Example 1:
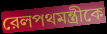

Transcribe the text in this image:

রেলপথমন্ত্রীকে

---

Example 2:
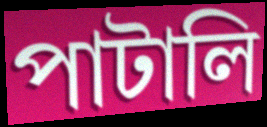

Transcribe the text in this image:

পাটালি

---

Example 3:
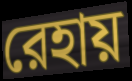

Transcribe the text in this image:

রেহায়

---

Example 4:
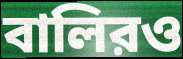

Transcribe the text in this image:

বালিরও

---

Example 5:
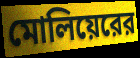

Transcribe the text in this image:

মোলিয়েরের